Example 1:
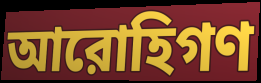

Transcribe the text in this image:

আরোহিগণ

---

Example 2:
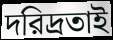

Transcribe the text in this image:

দরিদ্রতাই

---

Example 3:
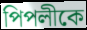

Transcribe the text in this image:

পিপলীকে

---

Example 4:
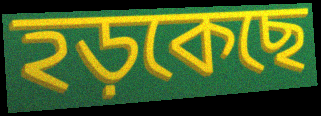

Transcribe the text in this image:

হড়কেছে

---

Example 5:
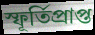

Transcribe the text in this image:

স্ফূর্তিপ্রাপ্ত